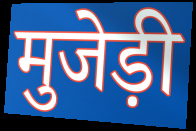
मुजेड़ी